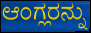
ಆಂಗ್ಲರನ್ನು